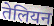
तेलियन